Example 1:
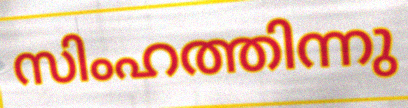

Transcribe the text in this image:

സിംഹത്തിന്നു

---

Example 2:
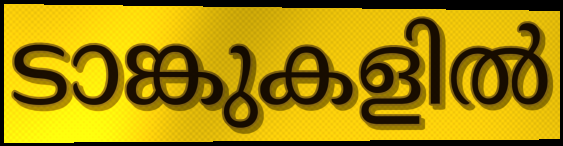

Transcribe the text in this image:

ടാങ്കുകളിൽ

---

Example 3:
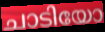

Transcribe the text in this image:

ചാടിയോ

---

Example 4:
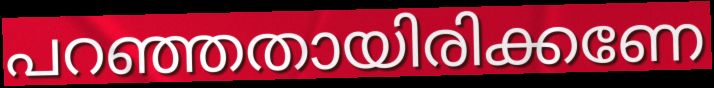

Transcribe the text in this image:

പറഞ്ഞതായിരിക്കണേ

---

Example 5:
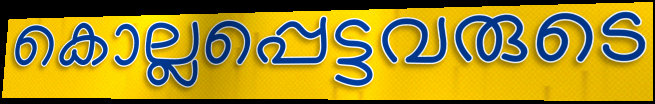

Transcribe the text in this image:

കൊല്ലപ്പെട്ടവരുടെ